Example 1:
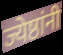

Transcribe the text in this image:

ज्येष्ठांनी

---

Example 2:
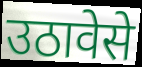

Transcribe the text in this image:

उठावेसे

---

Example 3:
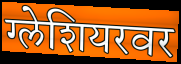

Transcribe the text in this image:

ग्लेशियरवर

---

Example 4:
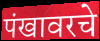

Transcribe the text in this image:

पंखावरचे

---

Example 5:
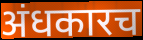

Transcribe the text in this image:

अंधकारच